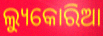
ଲ୍ୟୁକୋରିଆ